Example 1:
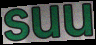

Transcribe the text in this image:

suu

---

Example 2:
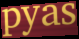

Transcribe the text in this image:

pyas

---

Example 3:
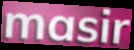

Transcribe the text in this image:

masir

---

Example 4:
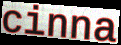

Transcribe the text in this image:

cinna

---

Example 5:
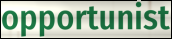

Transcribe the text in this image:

opportunist